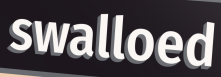
swalloed